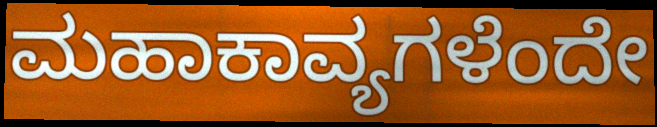
ಮಹಾಕಾವ್ಯಗಳೆಂದೇ